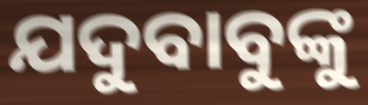
ଯଦୁବାବୁଙ୍କୁ